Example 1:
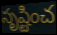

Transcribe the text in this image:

సృష్టించ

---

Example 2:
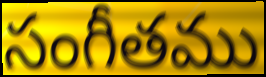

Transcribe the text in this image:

సంగీతము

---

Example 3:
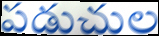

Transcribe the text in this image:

పడుచుల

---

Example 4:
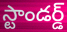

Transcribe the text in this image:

స్టాండర్డ్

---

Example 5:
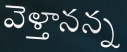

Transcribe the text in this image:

వెళ్తానన్న